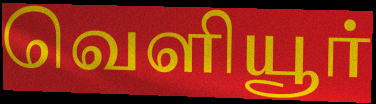
வெளியூர்